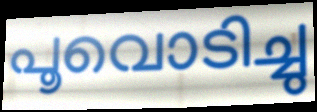
പൂവൊടിച്ചു